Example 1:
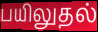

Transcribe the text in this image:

பயிலுதல்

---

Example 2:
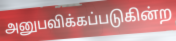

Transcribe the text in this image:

அனுபவிக்கப்படுகின்ற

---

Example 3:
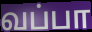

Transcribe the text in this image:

வப்பா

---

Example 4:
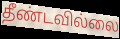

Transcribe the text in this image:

தீண்டவில்லை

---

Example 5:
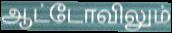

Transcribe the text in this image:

ஆட்டோவிலும்